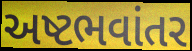
અષ્ટભવાંતર